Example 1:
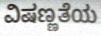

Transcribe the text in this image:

ವಿಷಣ್ಣತೆಯ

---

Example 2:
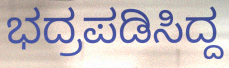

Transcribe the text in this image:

ಭದ್ರಪಡಿಸಿದ್ದ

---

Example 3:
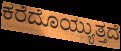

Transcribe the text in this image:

ಕರೆದೊಯ್ಯುತ್ತದೆ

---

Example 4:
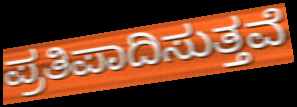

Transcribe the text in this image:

ಪ್ರತಿಪಾದಿಸುತ್ತವೆ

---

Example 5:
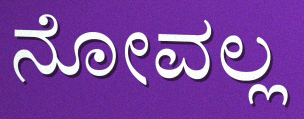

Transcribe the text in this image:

ನೋವಲ್ಲ